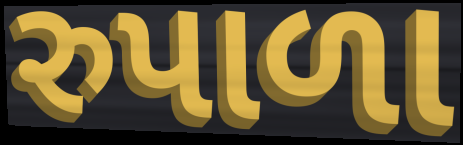
રુપાળા